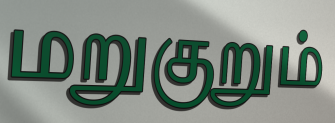
மறுகுறும்